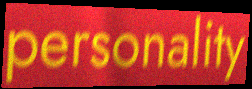
personality